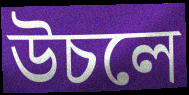
উচলে